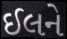
ઈલને